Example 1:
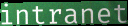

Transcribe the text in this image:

intranet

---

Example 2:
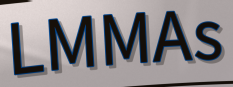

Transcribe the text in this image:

LMMAs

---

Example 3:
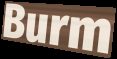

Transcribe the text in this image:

Burm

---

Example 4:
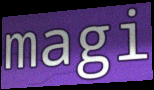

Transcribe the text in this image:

magi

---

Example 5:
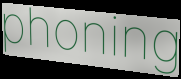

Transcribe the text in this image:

phoning